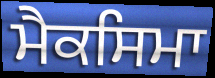
ਮੈਕਸਿਮਾ